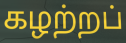
கழற்றப்